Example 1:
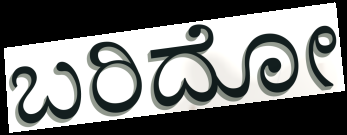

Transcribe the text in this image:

ಬರಿದೋ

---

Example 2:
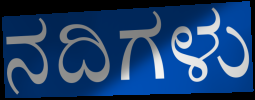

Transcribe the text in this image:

ನದಿಗಳು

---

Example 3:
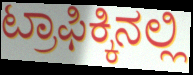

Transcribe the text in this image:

ಟ್ರಾಫಿಕ್ಕಿನಲ್ಲಿ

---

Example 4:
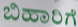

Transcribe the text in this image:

ಬಿಹಾರಿಗೆ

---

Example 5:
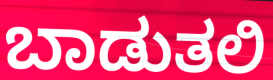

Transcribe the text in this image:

ಬಾಡುತಲಿ